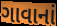
ગાવાનાં